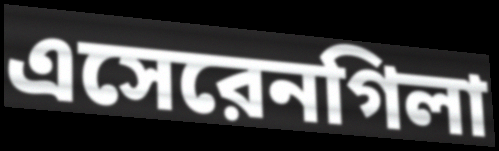
এসেরেনগিলা